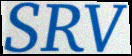
SRV